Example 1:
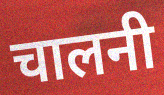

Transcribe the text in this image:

चालनी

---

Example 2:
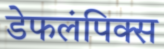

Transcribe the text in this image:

डेफलंपिक्स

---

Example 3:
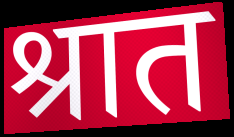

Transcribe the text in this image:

श्रात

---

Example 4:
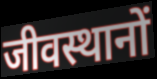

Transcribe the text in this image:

जीवस्थानों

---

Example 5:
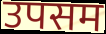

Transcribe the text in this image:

उपसम